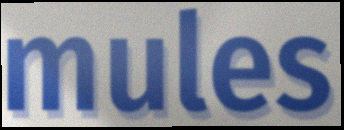
mules